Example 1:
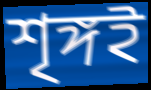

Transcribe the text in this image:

শৃঙ্গই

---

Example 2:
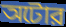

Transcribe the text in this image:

অটোর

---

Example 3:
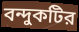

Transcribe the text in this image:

বন্দুকটির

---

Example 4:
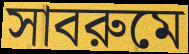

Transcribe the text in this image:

সাবরুমে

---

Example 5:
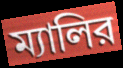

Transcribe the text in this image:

ম্যালির